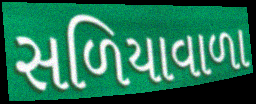
સળિયાવાળા